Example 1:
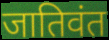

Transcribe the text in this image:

जातिवंत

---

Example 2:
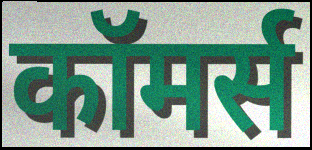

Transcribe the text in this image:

कॉमर्स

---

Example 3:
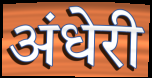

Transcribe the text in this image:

अंधेरी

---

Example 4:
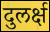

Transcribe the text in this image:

दुलर्क्ष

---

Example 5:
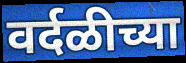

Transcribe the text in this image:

वर्दळीच्या